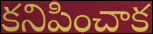
కనిపించాక